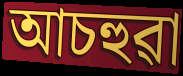
আচহুৱা